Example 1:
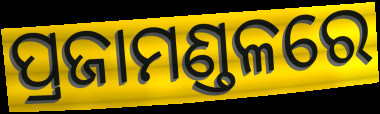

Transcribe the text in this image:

ପ୍ରଜାମଣ୍ଡଳରେ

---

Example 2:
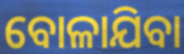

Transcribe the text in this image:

ବୋଳାଯିବା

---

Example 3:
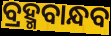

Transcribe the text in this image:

ବ୍ରହ୍ମବାନ୍ଧବ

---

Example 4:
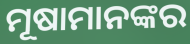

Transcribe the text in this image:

ମୂଷାମାନଙ୍କର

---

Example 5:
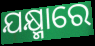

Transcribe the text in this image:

ଯକ୍ଷ୍ମାରେ